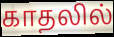
காதலில்